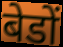
बेडों